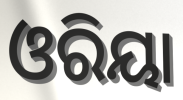
ଓରିୟା